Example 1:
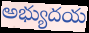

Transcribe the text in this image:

అభ్యుదయ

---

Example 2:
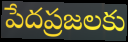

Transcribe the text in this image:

పేదప్రజలకు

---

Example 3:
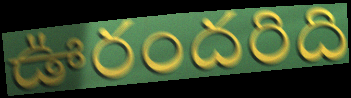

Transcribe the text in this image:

ఊరందరిది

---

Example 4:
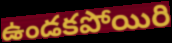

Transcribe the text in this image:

ఉండకపోయిరి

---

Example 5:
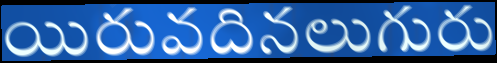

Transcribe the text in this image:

యిరువదినలుగురు